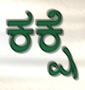
ಕಕ್ಷೆ